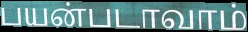
பயன்படாவாம்